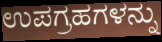
ಉಪಗ್ರಹಗಳನ್ನು